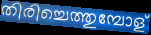
തിരിച്ചെത്തുമ്പോള്